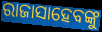
ରାଜାସାହେବଙ୍କୁ